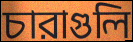
চারাগুলি